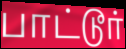
பாட்டூர்